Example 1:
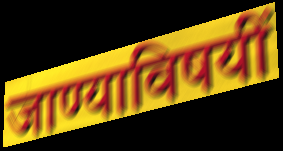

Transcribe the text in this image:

जाण्याविषयीं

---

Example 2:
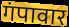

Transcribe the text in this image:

गंपावार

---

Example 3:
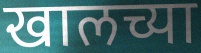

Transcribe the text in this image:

खालच्या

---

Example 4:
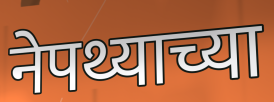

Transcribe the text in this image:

नेपथ्याच्या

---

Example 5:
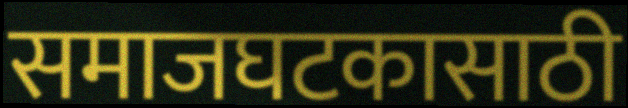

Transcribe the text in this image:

समाजघटकासाठी